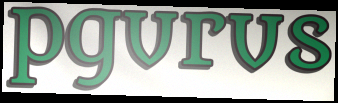
pgurus